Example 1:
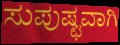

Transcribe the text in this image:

ಸುಪುಷ್ಟವಾಗಿ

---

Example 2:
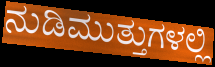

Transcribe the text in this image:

ನುಡಿಮುತ್ತುಗಳಲ್ಲಿ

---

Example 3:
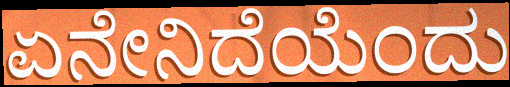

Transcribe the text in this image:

ಏನೇನಿದೆಯೆಂದು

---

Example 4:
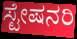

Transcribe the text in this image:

ಸ್ಟೇಷನರಿ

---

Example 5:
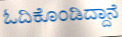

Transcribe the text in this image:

ಓದಿಕೊಂಡಿದ್ದಾನೆ